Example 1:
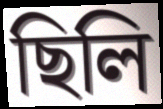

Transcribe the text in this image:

ছিলি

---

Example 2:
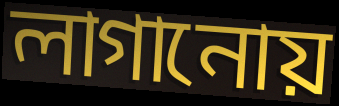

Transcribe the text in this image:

লাগানোয়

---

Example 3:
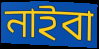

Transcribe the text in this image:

নাইবা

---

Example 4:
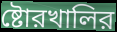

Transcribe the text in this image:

ষ্টোরখালির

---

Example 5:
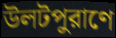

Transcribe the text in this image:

উলটপুরাণে